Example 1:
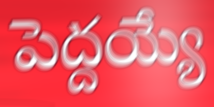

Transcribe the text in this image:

పెద్దయ్యే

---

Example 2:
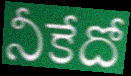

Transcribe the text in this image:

నీకేదో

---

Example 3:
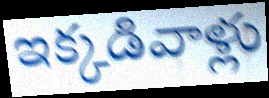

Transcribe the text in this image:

ఇక్కడివాళ్లు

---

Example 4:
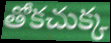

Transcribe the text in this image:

తోకచుక్క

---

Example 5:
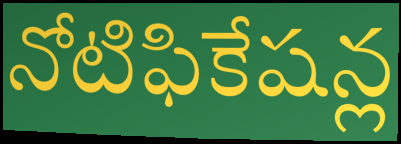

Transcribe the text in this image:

నోటిఫికేషన్ల